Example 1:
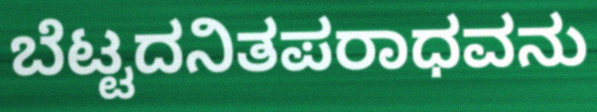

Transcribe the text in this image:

ಬೆಟ್ಟದನಿತಪರಾಧವನು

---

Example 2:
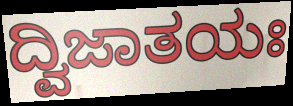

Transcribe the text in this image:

ದ್ವಿಜಾತಯಃ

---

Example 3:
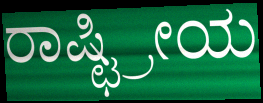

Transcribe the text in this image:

ರಾಷ್ಟ್ರೀಯ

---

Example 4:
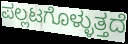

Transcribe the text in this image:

ಪಲ್ಲಟಗೊಳ್ಳುತ್ತದೆ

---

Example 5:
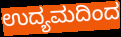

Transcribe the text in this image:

ಉದ್ಯಮದಿಂದ